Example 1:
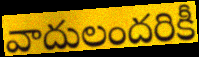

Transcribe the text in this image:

వాదులందరికీ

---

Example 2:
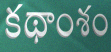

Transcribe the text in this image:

కథాంశం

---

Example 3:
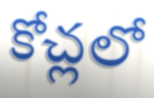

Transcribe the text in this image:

కోచ్లలో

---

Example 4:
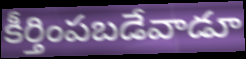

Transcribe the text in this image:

కీర్తింపబడేవాడూ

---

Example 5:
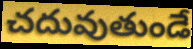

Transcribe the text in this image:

చదువుతుండే